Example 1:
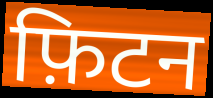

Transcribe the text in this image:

फ़िटन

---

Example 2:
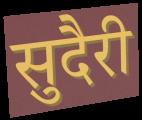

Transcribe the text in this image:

सुदैरी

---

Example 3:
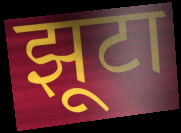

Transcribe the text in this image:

झूटा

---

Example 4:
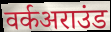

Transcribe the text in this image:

वर्कअराउंड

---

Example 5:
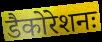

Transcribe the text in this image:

डैकोरेशनः